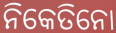
ନିକେତିନୋ